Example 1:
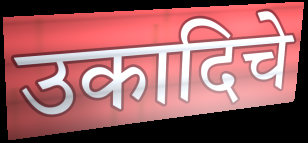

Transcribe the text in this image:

उकादिचे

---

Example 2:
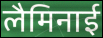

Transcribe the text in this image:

लैमिनाई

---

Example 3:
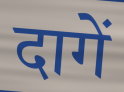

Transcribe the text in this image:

दागें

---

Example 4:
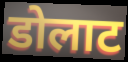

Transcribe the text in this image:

डोलाट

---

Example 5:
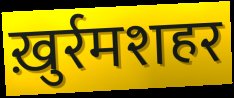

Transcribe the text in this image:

ख़ुर्रमशहर